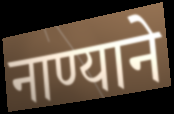
नाण्याने